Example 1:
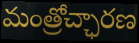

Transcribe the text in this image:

మంత్రోచ్ఛారణ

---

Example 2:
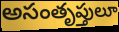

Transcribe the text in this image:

అసంతృప్తులూ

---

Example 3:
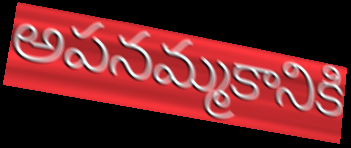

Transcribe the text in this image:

అపనమ్మకానికి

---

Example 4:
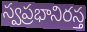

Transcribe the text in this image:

స్వప్రభానిరస్త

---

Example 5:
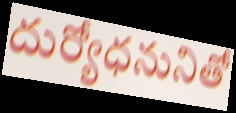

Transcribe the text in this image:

దుర్యోధనునితో